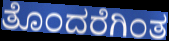
ತೊಂದರೆಗಿಂತ